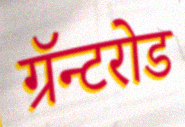
ग्रॅन्टरोड